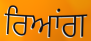
ਰਿਆਂਗ